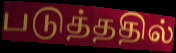
படுத்ததில்